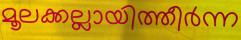
മൂലക്കല്ലായിത്തീർന്ന